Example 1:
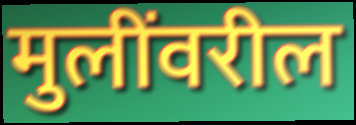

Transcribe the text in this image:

मुलींवरील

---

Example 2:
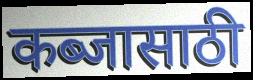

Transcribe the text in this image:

कब्जासाठी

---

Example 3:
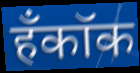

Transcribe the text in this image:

हँकॉक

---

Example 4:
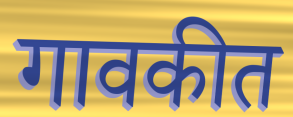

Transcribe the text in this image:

गावकीत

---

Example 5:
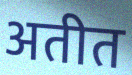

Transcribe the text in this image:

अतीत